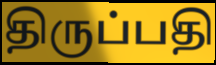
திருப்பதி